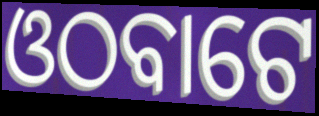
ଓଠବାଟେ